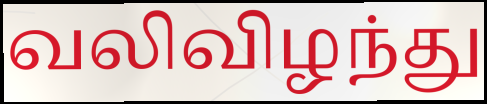
வலிவிழந்து